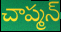
చాప్మన్